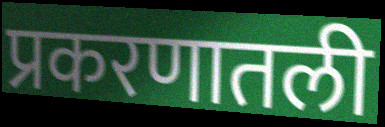
प्रकरणातली